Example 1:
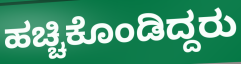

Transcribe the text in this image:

ಹಚ್ಚಿಕೊಂಡಿದ್ದರು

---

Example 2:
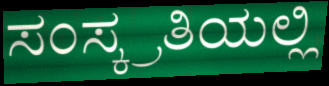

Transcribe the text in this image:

ಸಂಸ್ಕ್ರತಿಯಲ್ಲಿ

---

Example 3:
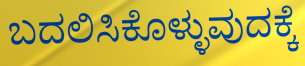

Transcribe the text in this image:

ಬದಲಿಸಿಕೊಳ್ಳುವುದಕ್ಕೆ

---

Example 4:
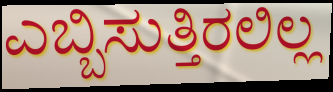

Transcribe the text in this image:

ಎಬ್ಬಿಸುತ್ತಿರಲಿಲ್ಲ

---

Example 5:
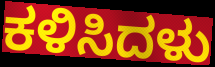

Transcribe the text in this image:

ಕಳಿಸಿದಳು